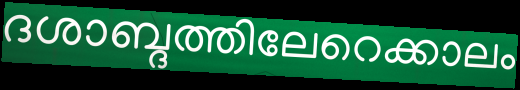
ദശാബ്ദത്തിലേറെക്കാലം